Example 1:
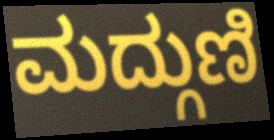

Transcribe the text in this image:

ಮದ್ಗುಣಿ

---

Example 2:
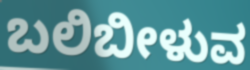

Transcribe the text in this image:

ಬಲಿಬೀಳುವ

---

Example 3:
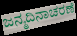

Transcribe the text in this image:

ಜನ್ಮದಿನಾಚರಣೆ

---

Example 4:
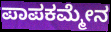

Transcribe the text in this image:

ಪಾಪಕಮ್ಮೇನ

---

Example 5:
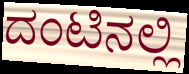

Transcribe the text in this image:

ದಂಟಿನಲ್ಲಿ